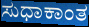
ಸುಧಾಕಾಂತ